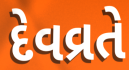
દેવવ્રતે